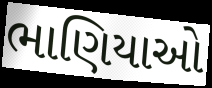
ભાણિયાઓ